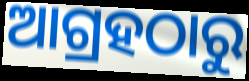
ଆଗ୍ରହଠାରୁ